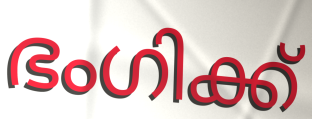
ഭംഗിക്ക്